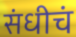
संधीचं